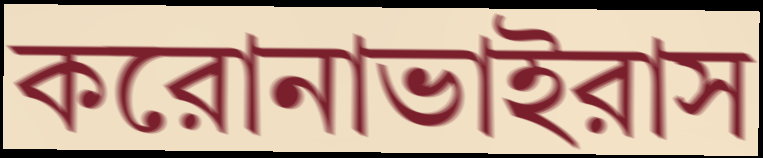
করোনাভাইরাস